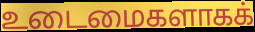
உடைமைகளாகக்